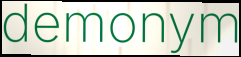
demonym